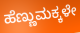
ಹೆಣ್ಣುಮಕ್ಕಳೇ